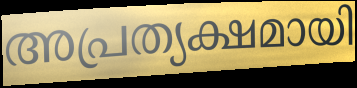
അപ്രത്യക്ഷമായി